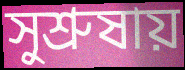
সুশ্রুষায়